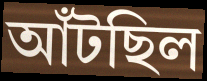
আঁটছিল